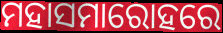
ମହାସମାରୋହରେ